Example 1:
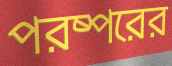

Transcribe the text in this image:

পরষ্পরের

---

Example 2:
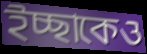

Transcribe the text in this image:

ইচ্ছাকেও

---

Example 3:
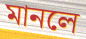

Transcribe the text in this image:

মানলে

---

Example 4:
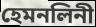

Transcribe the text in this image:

হেমনলিনী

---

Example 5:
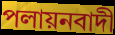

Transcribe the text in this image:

পলায়নবাদী